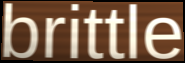
brittle